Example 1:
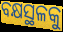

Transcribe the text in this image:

ବକ୍ଷସ୍ଥଳକୁ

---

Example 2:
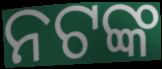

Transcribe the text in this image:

ନଟଙ୍କ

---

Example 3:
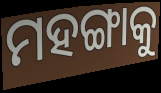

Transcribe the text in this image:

ମହଙ୍ଗାକୁ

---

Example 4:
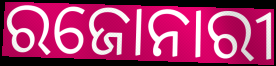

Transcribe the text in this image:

ରଜୋନାରୀ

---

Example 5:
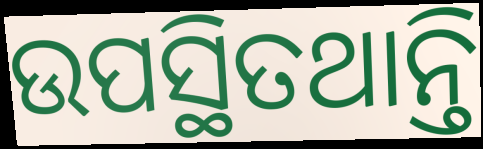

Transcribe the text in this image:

ଉପସ୍ଥିତଥାନ୍ତି